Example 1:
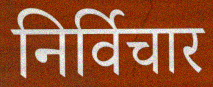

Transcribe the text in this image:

निर्विचार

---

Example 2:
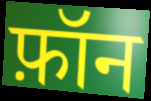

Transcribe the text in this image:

फ़ॉन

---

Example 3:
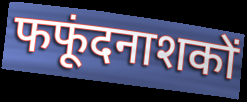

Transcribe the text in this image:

फफूंदनाशकों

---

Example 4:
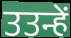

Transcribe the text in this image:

उउन्हें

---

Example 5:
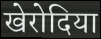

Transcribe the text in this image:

खेरोदिया